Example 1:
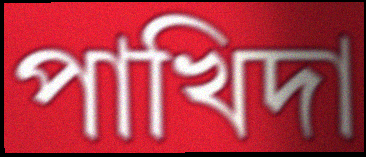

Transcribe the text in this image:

পাখিদা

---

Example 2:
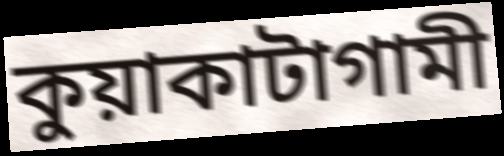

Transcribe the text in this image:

কুয়াকাটাগামী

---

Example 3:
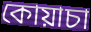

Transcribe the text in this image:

কোয়াচা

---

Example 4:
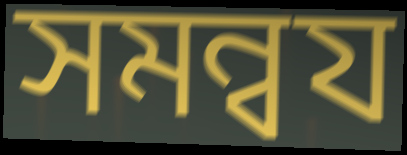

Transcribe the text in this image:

সমন্বয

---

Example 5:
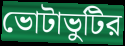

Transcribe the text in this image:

ভোটাভুটির